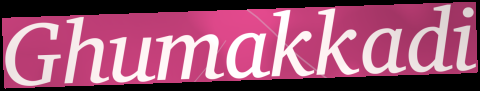
Ghumakkadi